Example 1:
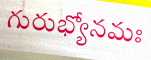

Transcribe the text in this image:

గురుభ్యోనమః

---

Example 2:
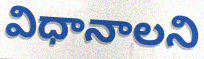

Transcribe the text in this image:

విధానాలని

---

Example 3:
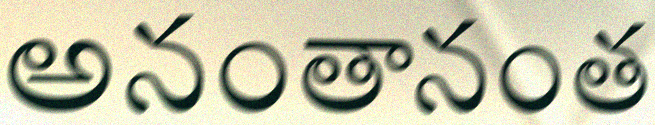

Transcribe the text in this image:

అనంతానంత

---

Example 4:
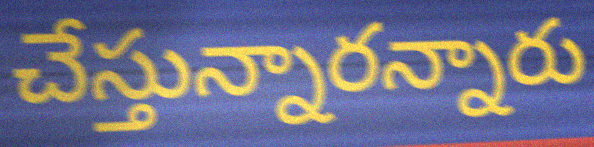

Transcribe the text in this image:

చేస్తున్నారన్నారు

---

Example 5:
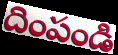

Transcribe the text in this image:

దింపండి